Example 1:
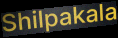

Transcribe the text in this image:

Shilpakala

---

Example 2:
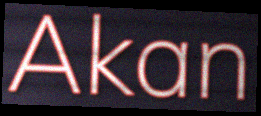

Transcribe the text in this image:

Akan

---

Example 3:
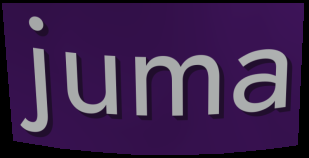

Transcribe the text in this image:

juma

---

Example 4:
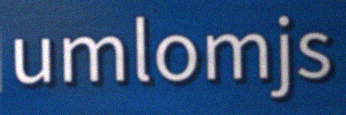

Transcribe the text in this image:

umlomjs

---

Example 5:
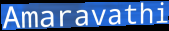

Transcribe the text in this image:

Amaravathi